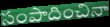
సంపాదించినా